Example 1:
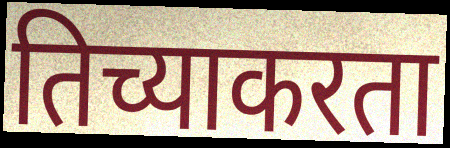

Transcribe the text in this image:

तिच्याकरता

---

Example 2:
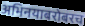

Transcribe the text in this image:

अभिनयाबरोबरच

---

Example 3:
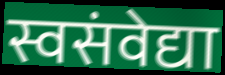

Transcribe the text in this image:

स्वसंवेद्या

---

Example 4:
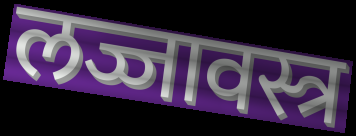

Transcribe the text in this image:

लज्जावस्त्र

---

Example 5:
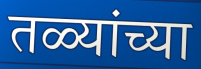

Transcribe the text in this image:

तळ्यांच्या